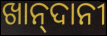
ଖାନ୍‍ଦାନୀ